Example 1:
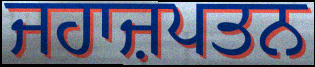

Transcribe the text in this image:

ਜਹਾਜ਼ਪਤਨ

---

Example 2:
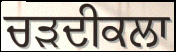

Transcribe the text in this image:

ਚੜਦੀਕਲਾ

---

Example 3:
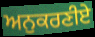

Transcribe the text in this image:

ਅਨੁਕਰਣੀਏ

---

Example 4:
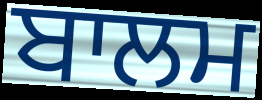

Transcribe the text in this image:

ਬਾਲਮ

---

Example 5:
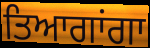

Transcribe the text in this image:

ਤਿਆਗਾਂਗਾ